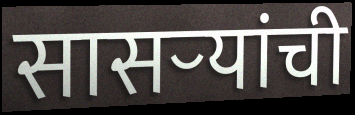
सासऱ्यांची